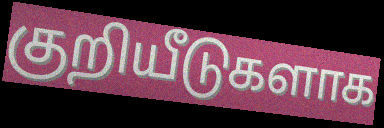
குறியீடுகளாக